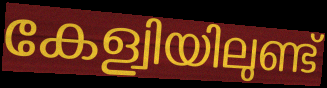
കേള്വിയിലുണ്ട്